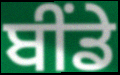
ਬੀਂਡੇ